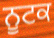
ਨੂਟਕ